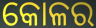
କୋଳର